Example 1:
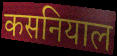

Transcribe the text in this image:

कसनियाल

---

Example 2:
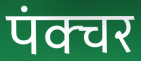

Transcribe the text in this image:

पंक्‍चर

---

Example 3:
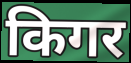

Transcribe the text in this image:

किगर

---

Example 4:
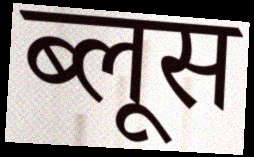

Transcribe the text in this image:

ब्लूस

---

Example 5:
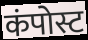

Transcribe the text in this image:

कंपोस्ट